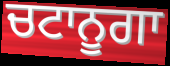
ਚਟਾਨੂਗਾ